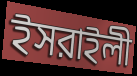
ইসরাইলী